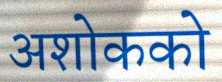
अशोकको